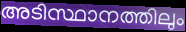
അടിസ്ഥാനത്തിലും